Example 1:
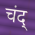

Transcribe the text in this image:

चंद्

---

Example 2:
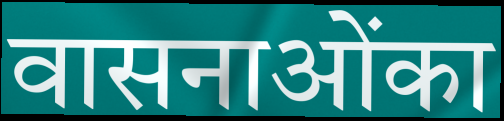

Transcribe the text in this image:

वासनाओंका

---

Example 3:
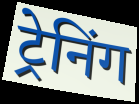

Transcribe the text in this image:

ट्रेनिंग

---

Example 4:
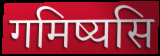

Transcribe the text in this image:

गमिष्यसि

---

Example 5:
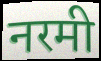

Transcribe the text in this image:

नरमी